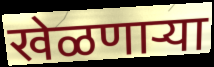
खेळणाऱ्या